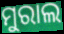
ମୁରାଲ